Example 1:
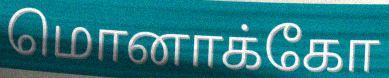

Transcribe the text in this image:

மொனாக்கோ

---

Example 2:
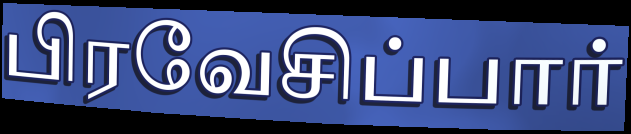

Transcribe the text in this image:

பிரவேசிப்பார்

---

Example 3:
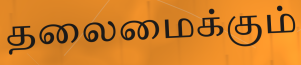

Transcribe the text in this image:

தலைமைக்கும்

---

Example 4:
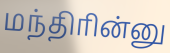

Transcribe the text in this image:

மந்திரின்னு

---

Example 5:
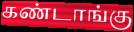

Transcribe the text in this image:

கண்டாங்கு